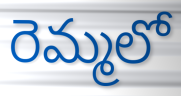
రెమ్మలో